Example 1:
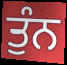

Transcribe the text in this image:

ਤੁੰਨ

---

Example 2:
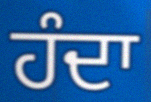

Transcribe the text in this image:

ਹੰਦਾ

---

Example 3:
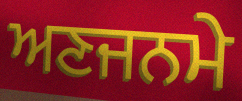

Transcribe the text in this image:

ਅਣਜਨਮੇ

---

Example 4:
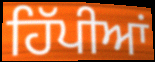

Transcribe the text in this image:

ਹਿੱਪੀਆਂ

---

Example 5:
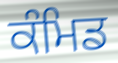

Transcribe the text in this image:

ਕੰਮਿਡ